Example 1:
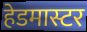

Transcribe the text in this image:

हेडमास्टर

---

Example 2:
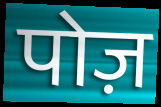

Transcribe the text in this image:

पोज़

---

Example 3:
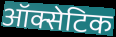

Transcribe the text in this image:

ऑक्सेटिक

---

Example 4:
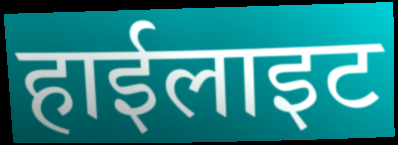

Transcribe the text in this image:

हाईलाइट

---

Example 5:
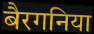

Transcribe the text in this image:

बैरगनिया